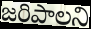
జరిపాలని